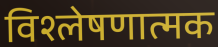
विश्लेषणात्मक